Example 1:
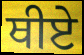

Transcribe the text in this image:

ਥੀਏ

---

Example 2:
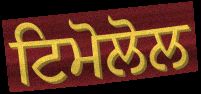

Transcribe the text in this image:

ਟਿਮੋਲੋਲ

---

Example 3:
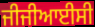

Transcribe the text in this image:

ਜੀਜੀਆਈਸੀ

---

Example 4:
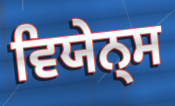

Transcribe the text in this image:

ਵਿਯੇਨ੍ਸ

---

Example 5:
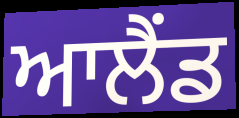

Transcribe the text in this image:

ਆਲੈਂਡ